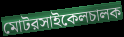
মোটরসাইকেলচালক